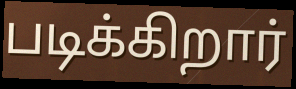
படிக்கிறார்